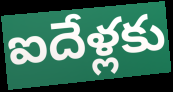
ఐదేళ్లకు